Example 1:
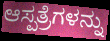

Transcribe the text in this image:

ಆಸ್ಪತ್ರೆಗಳನ್ನು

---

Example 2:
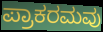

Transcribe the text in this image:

ಪ್ರಾಕರಮವು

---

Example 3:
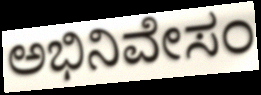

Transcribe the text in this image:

ಅಭಿನಿವೇಸಂ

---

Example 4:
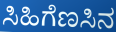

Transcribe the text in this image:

ಸಿಹಿಗೆಣಸಿನ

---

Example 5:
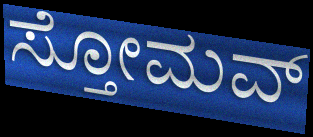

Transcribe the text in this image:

ಸ್ತೋಮವ್